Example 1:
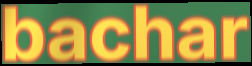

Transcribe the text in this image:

bachar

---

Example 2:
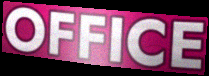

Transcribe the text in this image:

OFFICE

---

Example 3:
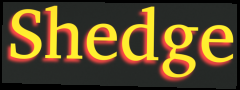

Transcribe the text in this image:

Shedge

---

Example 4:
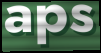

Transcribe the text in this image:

aps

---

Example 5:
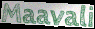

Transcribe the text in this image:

Maavali